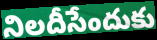
నిలదీసేందుకు